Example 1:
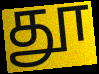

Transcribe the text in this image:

தூ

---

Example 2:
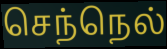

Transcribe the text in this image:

செந்நெல்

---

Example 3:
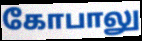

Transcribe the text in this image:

கோபாலு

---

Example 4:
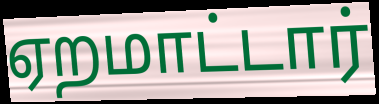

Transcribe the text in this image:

ஏறமாட்டார்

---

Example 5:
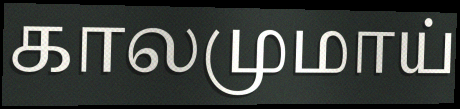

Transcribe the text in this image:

காலமுமாய்